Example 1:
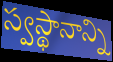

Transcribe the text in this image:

స్వస్థానాన్ని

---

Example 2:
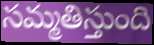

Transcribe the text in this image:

సమ్మతిస్తుంది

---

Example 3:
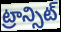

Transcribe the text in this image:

ట్రాన్సిట్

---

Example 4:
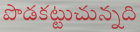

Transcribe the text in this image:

పొడకట్టుచున్నది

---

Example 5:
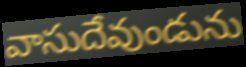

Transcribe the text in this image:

వాసుదేవుండును